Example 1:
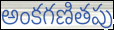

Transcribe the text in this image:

అంకగణితపు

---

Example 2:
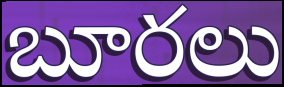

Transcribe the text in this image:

బూరలు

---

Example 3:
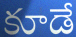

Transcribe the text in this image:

కూడే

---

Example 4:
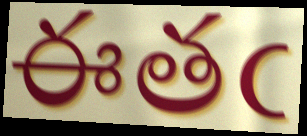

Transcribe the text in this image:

ఈతఁ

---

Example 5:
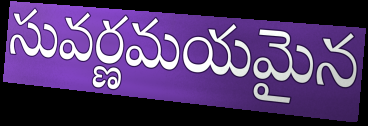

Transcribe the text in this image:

సువర్ణమయమైన